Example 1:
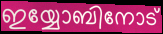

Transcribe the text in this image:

ഇയ്യോബിനോട്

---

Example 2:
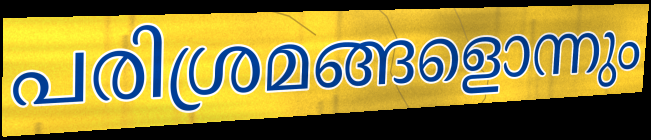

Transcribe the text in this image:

പരിശ്രമങ്ങളൊന്നും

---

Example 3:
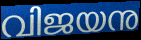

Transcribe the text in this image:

വിജയനു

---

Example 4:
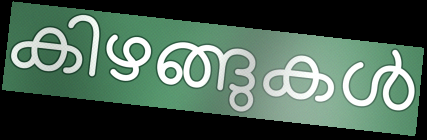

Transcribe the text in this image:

കിഴങ്ങുകൾ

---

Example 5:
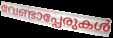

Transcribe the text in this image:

വേണ്ടാപ്പേരുകൾ